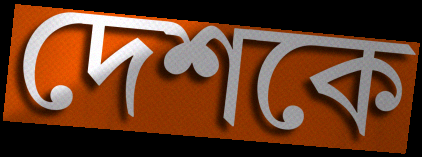
দেশকে